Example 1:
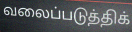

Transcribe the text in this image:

வலைப்படுத்திக்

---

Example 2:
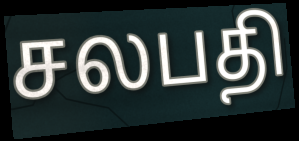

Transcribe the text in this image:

சலபதி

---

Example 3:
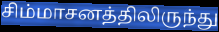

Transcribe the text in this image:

சிம்மாசனத்திலிருந்து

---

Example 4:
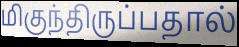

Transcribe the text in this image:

மிகுந்திருப்பதால்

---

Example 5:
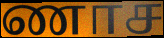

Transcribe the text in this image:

ணாச